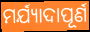
ମର୍ଯ୍ୟାଦାପୂର୍ଣ